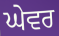
ਘੇਵਰ